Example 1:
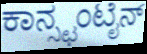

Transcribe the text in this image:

ಕಾನ್ಸ್ಟಂಟೈನ್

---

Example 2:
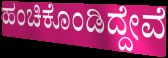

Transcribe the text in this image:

ಹಂಚಿಕೊಂಡಿದ್ದೇವೆ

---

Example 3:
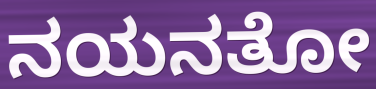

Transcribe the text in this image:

ನಯನತೋ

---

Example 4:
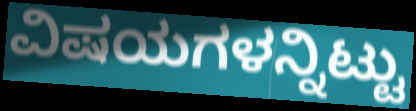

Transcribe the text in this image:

ವಿಷಯಗಳನ್ನಿಟ್ಟು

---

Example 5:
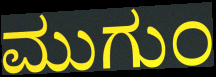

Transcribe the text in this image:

ಮುಗುಂ